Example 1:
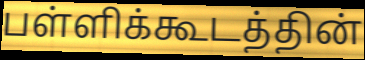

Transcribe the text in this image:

பள்ளிக்கூடத்தின்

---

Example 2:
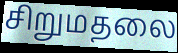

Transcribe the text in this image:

சிறுமதலை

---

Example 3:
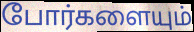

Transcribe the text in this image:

போர்களையும்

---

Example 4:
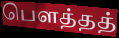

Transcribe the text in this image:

பௌத்தத்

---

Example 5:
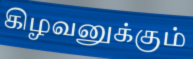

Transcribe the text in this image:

கிழவனுக்கும்